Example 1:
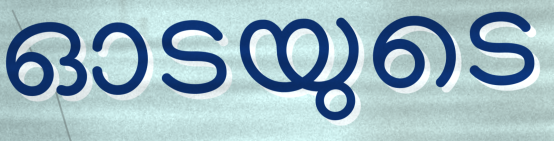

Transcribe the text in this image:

ഓടയുടെ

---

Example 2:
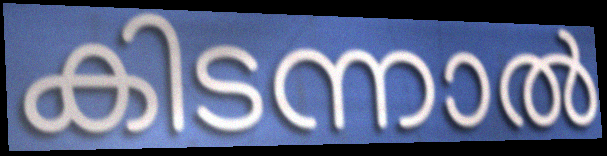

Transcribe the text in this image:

കിടന്നാൽ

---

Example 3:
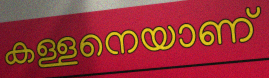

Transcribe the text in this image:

കള്ളനെയാണ്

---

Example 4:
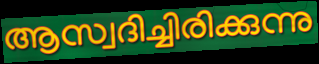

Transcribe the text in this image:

ആസ്വദിച്ചിരിക്കുന്നു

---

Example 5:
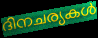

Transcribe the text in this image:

ദിനചര്യകൾ